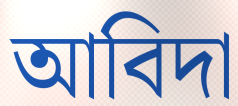
আবিদা